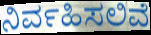
ನಿರ್ವಹಿಸಲಿವೆ